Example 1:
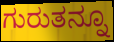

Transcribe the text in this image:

ಗುರುತನ್ನೂ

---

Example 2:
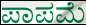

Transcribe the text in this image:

ಪಾಪಮೆ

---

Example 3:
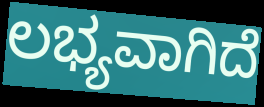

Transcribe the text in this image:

ಲಭ್ಯವಾಗಿದೆ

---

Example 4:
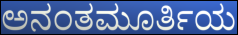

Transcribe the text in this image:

ಅನಂತಮೂರ್ತಿಯ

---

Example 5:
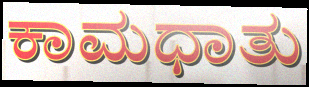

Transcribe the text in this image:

ಕಾಮಧಾತು